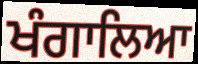
ਖੰਗਾਲਿਆ